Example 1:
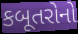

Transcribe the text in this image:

કબૂતરોનો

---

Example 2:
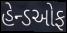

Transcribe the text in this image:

હેન્ડઓફ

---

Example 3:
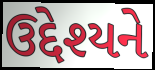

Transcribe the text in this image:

ઉદ્દેશ્યને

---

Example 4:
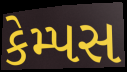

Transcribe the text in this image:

કેમ્પસ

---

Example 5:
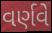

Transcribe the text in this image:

વર્ણવે